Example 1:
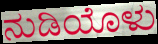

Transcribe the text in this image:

ನುಡಿಯೊಳು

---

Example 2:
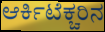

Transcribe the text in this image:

ಆರ್ಕಿಟೆಕ್ಚರಿನ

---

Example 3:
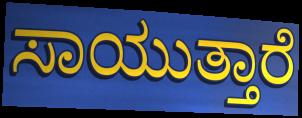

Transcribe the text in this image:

ಸಾಯುತ್ತಾರೆ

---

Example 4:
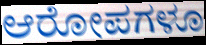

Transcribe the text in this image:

ಆರೋಪಗಳೂ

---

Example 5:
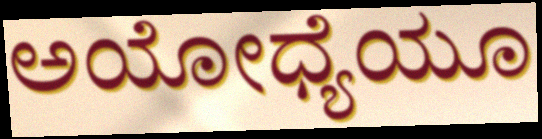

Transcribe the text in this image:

ಅಯೋಧ್ಯೆಯೂ